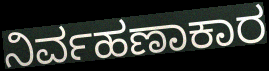
ನಿರ್ವಹಣಾಕಾರ